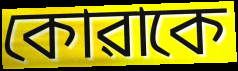
কোৱাকে